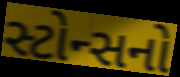
સ્ટોન્સનો